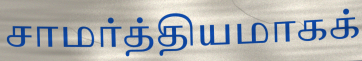
சாமர்த்தியமாகக்